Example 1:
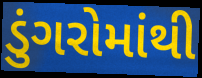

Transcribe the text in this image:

ડુંગરોમાંથી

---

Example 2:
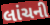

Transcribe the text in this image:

લાંચની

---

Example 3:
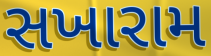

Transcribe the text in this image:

સખારામ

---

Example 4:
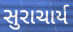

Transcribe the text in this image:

સુરાચાર્ય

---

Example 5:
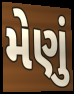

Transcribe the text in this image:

મેણું